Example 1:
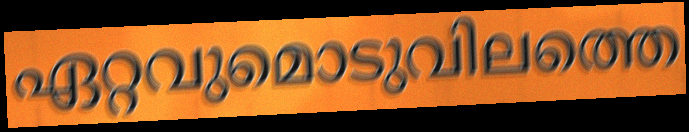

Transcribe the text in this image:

ഏറ്റവുമൊടുവിലത്തെ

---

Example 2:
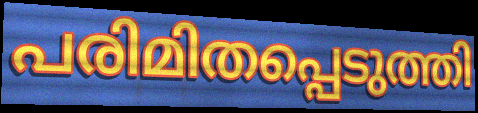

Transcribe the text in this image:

പരിമിതപ്പെടുത്തി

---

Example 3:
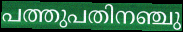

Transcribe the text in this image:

പത്തുപതിനഞ്ചു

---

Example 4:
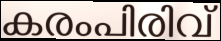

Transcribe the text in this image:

കരംപിരിവ്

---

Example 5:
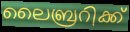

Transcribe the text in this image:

ലൈബ്രറിക്ക്